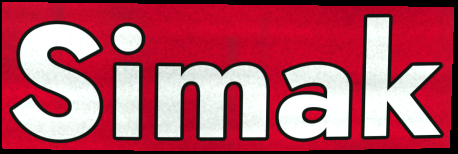
Simak